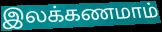
இலக்கணமாம்